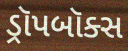
ડ્રૉપબૉક્સ